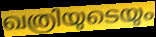
ഖത്രിയുടെയും